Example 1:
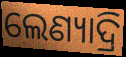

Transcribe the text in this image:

ଲେଣ୍ୟାଦ୍ରି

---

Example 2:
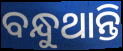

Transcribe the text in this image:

ବନ୍ଧୁଥାନ୍ତି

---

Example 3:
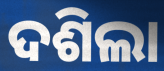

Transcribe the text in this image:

ଦଶିଲା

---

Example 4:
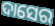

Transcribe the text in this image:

ଦାସେର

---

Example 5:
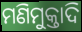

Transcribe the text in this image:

ମଣିମୁକ୍ତାଦି